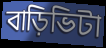
বাড়িভিটা